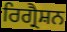
ਰਿਗ੍ਰੈਸ਼ਨ